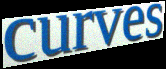
curves